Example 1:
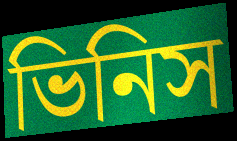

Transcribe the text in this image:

ভিনিস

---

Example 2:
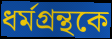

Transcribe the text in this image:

ধর্মগ্রন্থকে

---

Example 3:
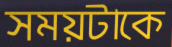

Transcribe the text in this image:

সময়টাকে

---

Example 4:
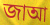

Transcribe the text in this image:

জাআ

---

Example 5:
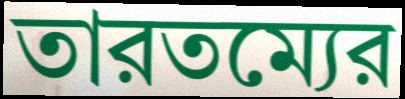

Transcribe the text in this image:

তারতম্যের